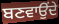
ਬਣਵਾਉਂਦੇ